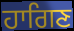
ਹਾਗਿਣ